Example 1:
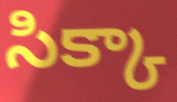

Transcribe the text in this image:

సిక్కా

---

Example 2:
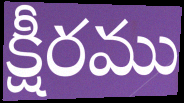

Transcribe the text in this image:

క్షీరము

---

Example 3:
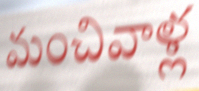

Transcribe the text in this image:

మంచివాళ్ల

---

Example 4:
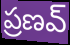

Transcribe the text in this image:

ప్రణవ్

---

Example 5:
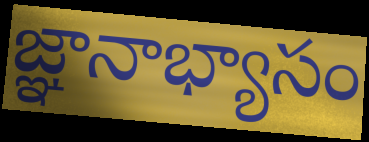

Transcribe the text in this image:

జ్ఞానాభ్యాసం